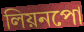
লিয়নপো